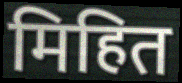
मिहित